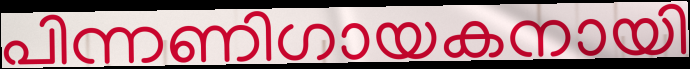
പിന്നണിഗായകനായി